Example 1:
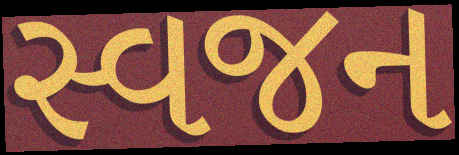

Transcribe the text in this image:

સ્વજન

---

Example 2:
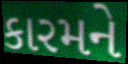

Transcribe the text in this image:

કારમને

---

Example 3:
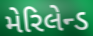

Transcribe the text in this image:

મેરિલેન્ડ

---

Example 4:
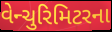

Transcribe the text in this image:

વેન્ચુરિમિટરના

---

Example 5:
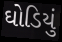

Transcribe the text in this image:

ઘોડિયું